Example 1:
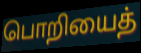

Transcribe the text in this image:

பொறியைத்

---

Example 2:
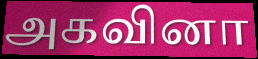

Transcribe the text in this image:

அகவினா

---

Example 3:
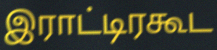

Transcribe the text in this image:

இராட்டிரகூட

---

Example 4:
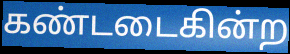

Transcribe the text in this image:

கண்டடைகின்ற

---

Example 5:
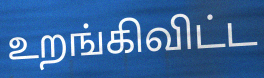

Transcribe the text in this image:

உறங்கிவிட்ட